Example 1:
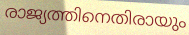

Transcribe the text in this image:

രാജ്യത്തിനെതിരായും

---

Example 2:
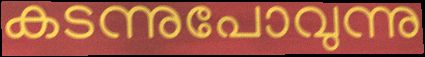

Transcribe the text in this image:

കടന്നുപോവുന്നു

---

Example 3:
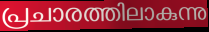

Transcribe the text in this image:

പ്രചാരത്തിലാകുന്നു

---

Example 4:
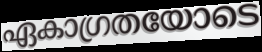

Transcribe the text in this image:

ഏകാഗ്രതയോടെ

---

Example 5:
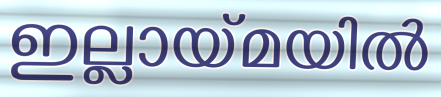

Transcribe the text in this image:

ഇല്ലായ്മയിൽ